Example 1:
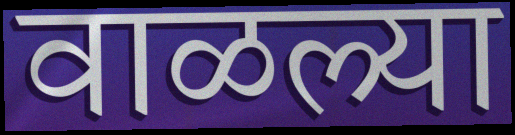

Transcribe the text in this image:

वाळल्या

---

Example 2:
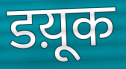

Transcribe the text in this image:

डय़ूक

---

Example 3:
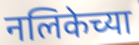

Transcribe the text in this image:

नलिकेच्या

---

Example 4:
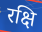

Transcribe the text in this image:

रक्षि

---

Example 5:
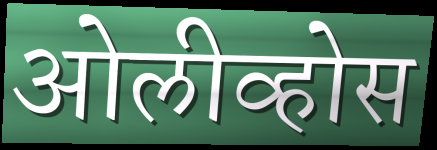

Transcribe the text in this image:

ओलीव्होस